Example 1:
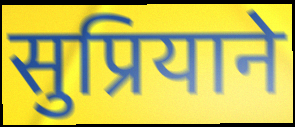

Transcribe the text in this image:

सुप्रियाने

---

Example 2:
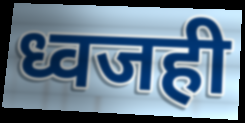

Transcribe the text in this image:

ध्वजही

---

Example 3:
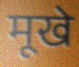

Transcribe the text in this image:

मूखे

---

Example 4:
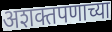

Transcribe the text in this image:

अशक्तपणाच्या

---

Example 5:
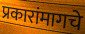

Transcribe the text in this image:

प्रकारांमागचे